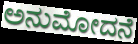
ಅನುಮೋದನೆ